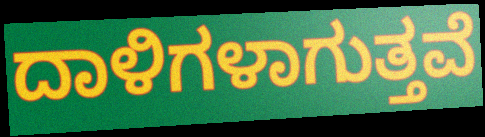
ದಾಳಿಗಳಾಗುತ್ತವೆ